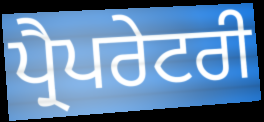
ਪ੍ਰੈਪਰੇਟਰੀ